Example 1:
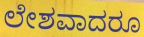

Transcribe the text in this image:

ಲೇಶವಾದರೂ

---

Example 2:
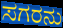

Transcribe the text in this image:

ಸಗರನು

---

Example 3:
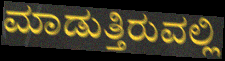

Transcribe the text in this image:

ಮಾಡುತ್ತಿರುವಲ್ಲಿ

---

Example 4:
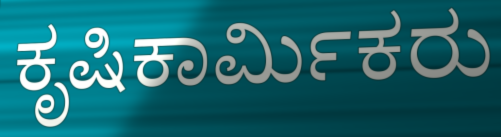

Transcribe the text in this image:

ಕೃಷಿಕಾರ್ಮಿಕರು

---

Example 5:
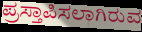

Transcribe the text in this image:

ಪ್ರಸ್ತಾಪಿಸಲಾಗಿರುವ